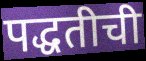
पद्धतीची